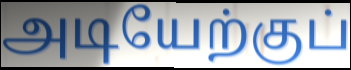
அடியேற்குப்